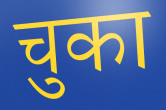
चुका